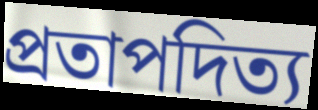
প্ৰতাপদিত্য